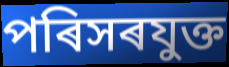
পৰিসৰযুক্ত